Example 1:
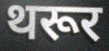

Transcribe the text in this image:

थरूर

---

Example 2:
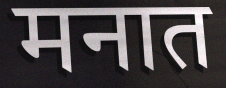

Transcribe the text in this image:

मनात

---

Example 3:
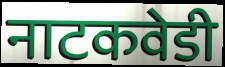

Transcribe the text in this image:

नाटकवेडी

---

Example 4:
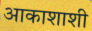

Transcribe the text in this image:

आकाशाशी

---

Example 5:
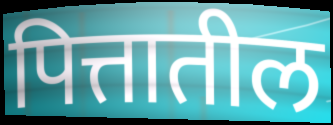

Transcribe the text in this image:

पित्तातील